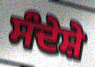
ਸੰਦੇਸ਼ੇ